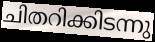
ചിതറിക്കിടന്നു